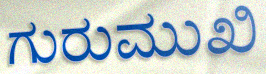
ಗುರುಮುಖಿ